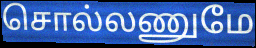
சொல்லணுமே